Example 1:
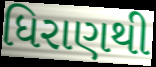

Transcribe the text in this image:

ધિરાણથી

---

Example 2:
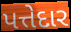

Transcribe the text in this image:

પત્તેદાર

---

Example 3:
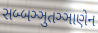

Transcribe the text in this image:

સબ્બઞ્ઞુતઞ્ઞાણેન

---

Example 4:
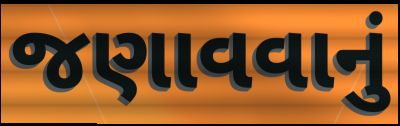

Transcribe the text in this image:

જણાવવાનું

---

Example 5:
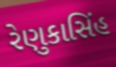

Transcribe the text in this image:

રેણુકાસિંહ